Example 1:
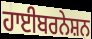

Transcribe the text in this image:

ਹਾਈਬਰਨੇਸ਼ਨ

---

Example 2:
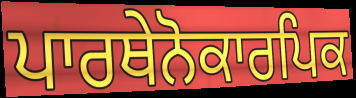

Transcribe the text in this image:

ਪਾਰਥੇਨੋਕਾਰਪਿਕ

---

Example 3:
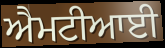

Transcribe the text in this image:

ਐਮਟੀਆਈ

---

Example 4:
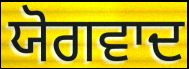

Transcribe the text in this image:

ਯੋਗਵਾਦ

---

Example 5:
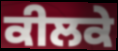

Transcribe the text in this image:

ਕੀਲਕੇ